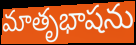
మాతృభాషను